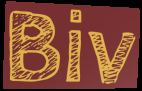
Biv